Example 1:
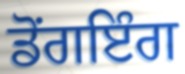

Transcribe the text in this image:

ਡੋਂਗਇੰਗ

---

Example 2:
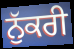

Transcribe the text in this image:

ਨੁੱਕਰੀ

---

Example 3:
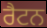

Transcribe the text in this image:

ਰੈਟਨ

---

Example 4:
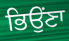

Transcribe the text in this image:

ਭਿਉਂਣਾ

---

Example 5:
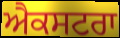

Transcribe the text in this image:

ਐਕਸਟਰਾ